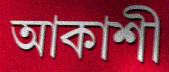
আকাশী